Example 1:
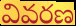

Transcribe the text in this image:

వివరణ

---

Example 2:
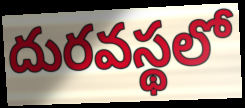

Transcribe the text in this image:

దురవస్థలో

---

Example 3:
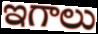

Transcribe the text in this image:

ఇగాలు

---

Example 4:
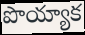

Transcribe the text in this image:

పొయ్యాక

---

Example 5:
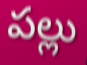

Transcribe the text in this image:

పల్లు